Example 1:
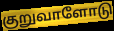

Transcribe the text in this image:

குறுவாளோடு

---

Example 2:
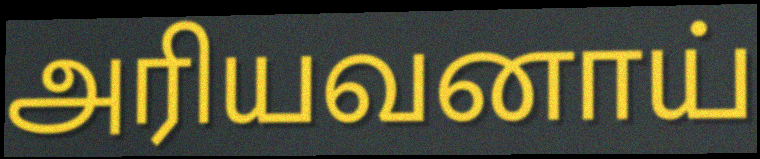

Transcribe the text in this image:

அரியவனாய்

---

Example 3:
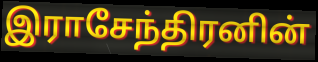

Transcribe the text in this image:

இராசேந்திரனின்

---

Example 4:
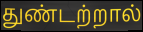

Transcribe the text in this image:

துண்டற்றால்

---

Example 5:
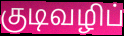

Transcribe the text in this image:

குடிவழிப்